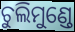
ଚୁଲିମୁଣ୍ଡେ